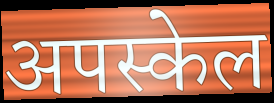
अपस्केल